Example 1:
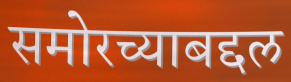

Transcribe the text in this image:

समोरच्याबद्दल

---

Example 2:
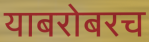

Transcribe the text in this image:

याबरोबरच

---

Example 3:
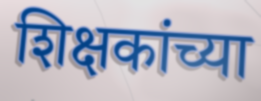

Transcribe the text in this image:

शिक्षकांच्या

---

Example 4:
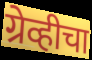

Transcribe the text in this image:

ग्रेव्हीचा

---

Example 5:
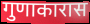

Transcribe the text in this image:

गुणाकारास